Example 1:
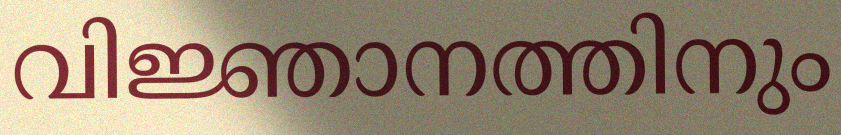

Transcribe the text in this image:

വിജ്ഞാനത്തിനും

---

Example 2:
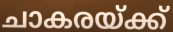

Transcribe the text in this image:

ചാകരയ്ക്ക്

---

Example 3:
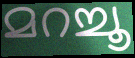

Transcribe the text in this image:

മറച്ചൂ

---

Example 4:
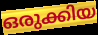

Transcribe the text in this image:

ഒരുക്കിയ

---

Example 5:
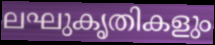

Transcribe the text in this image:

ലഘുകൃതികളും